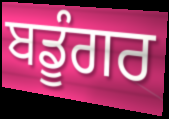
ਬਡੂੰਗਰ